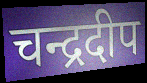
चन्द्रदीप